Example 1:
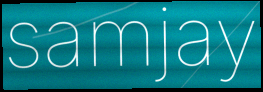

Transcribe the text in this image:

samjay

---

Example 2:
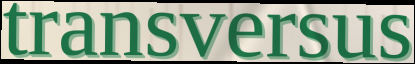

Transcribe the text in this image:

transversus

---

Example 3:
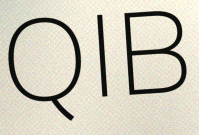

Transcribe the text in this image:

QIB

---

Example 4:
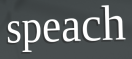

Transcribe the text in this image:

speach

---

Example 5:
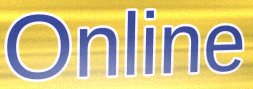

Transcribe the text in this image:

Online